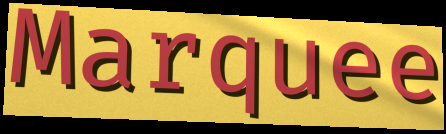
Marquee